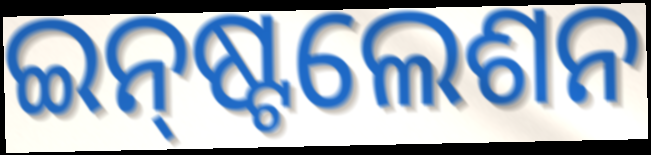
ଇନ୍‌ଷ୍ଟଲେଶନ